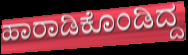
ಹಾರಾಡಿಕೊಂಡಿದ್ದ